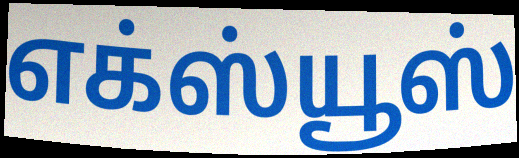
எக்ஸ்யூஸ்